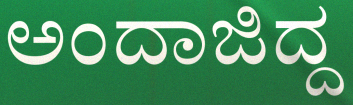
ಅಂದಾಜಿದ್ದ